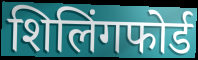
शिलिंगफोर्ड